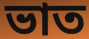
ভাত